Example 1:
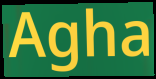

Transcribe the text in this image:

Agha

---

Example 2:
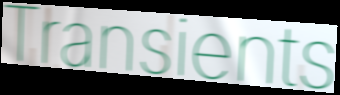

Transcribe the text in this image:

Transients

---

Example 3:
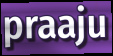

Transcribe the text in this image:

praaju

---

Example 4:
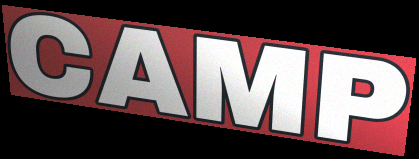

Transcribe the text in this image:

CAMP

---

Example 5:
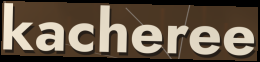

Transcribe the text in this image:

kacheree